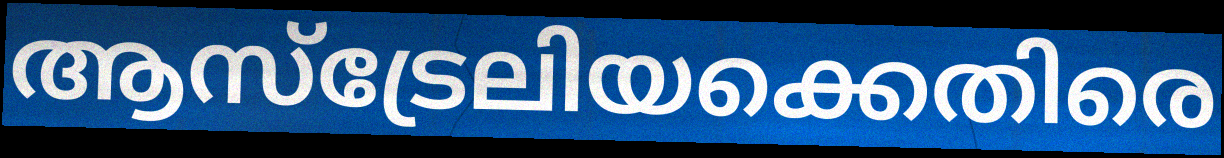
ആസ്ട്രേലിയക്കെതിരെ